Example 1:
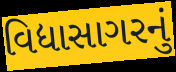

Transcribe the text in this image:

વિદ્યાસાગરનું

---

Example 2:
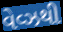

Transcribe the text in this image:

વેવ્ઝથી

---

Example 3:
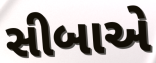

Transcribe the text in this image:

સીબાએ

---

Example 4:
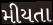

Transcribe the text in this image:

મીયતા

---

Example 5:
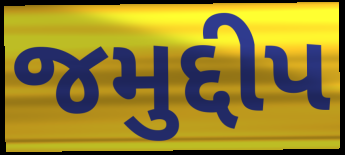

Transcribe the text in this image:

જમુદ્દીપ